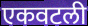
एकवटली